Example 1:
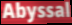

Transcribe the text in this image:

Abyssal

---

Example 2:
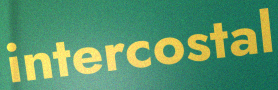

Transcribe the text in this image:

intercostal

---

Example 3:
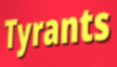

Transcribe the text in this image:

Tyrants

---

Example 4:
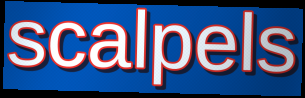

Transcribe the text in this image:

scalpels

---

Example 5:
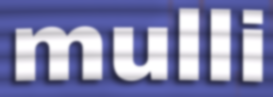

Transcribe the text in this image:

mulli